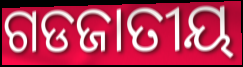
ଗଡଜାତୀୟ